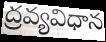
ద్రవ్యవిధాన